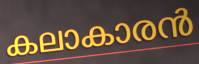
കലാകാരൻ